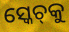
ସ୍କେଚ୍‌କୁ